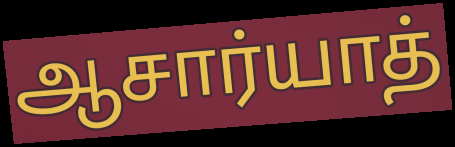
ஆசார்யாத்